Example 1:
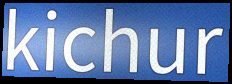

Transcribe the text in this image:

kichur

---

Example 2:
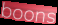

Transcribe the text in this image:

boons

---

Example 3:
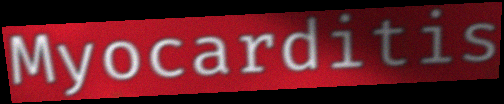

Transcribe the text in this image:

Myocarditis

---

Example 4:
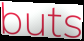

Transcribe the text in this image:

buts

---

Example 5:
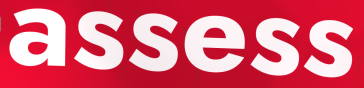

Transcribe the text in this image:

assess